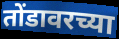
तोंडावरच्या